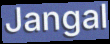
Jangal